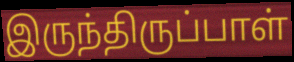
இருந்திருப்பாள்